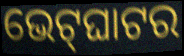
ଭେଟ୍‌ଘାଟର